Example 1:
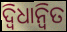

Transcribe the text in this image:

ଦ୍ଵିଧାନ୍ୱିତ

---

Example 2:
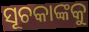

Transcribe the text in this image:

ସୂଚକାଙ୍କକୁ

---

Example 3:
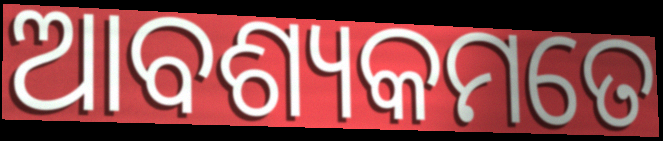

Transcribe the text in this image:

ଆବଶ୍ୟକମତେ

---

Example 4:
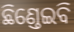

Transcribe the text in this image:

ଛିଣ୍ଡେଇବି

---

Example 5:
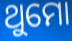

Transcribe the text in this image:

ଥୁମୋ